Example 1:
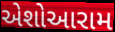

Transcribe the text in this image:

એશોઆરામ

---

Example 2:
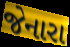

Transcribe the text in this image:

જેનારા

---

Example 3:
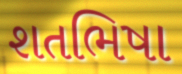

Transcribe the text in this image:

શતભિષા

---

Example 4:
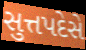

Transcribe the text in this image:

સુત્તપદેસે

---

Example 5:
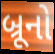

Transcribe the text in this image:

બ્રૂનો